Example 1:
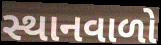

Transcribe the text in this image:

સ્થાનવાળો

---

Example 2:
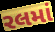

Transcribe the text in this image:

રલમાં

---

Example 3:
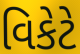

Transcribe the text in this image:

વિકેટે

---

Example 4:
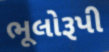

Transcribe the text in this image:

ભૂલોરૂપી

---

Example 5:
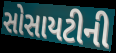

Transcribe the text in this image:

સોસાયટીની